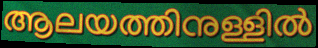
ആലയത്തിനുള്ളിൽ